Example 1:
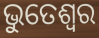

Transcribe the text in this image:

ଭୁତେଶ୍ୱର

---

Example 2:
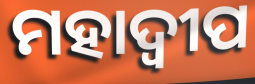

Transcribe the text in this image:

ମହାଦ୍ୱୀପ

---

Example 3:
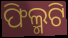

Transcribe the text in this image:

ଫିଲ୍ମଟି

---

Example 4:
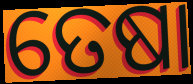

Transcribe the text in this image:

ତେଷା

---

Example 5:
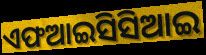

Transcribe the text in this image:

ଏଫଆଇସିସିଆଇ